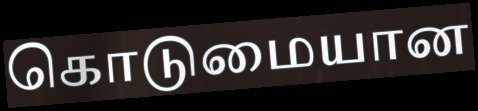
கொடுமையான